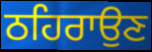
ਠਹਿਰਾਉਣ